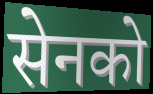
सेनको